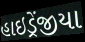
હાઇડ્રેંજીયા